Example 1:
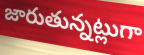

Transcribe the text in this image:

జారుతున్నట్లుగా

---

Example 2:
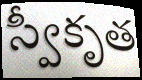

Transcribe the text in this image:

స్వీకృత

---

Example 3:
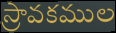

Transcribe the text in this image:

స్రావకముల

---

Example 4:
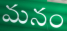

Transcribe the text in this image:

మనం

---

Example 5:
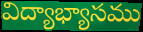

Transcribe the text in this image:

విద్యాభ్యాసము